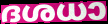
ദശധാ